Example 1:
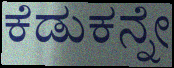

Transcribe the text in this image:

ಕೆಡುಕನ್ನೇ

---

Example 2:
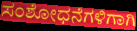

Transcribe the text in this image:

ಸಂಶೋಧನೆಗಳಿಗಾಗಿ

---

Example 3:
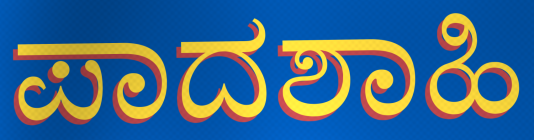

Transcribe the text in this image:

ಪಾದಶಾಹಿ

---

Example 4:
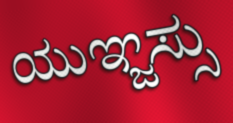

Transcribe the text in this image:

ಯುಞ್ಜಸ್ಸು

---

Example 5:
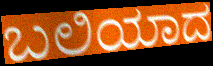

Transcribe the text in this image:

ಬಲಿಯಾದ